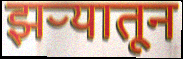
झऱ्यातून